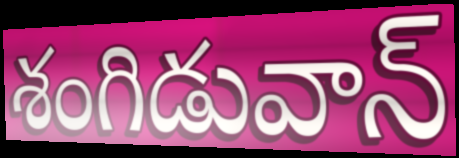
శంగిడువాన్